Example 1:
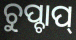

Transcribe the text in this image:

ଚୁପ୍ଚାପ୍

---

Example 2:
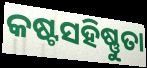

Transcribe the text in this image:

କଷ୍ଟସହିଷ୍ଣୁତା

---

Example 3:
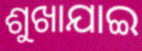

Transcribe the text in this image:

ଶୁଖାଯାଇ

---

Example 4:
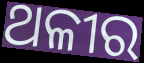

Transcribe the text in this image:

ଥଳୀର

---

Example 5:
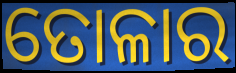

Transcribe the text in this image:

ତୋଳାର